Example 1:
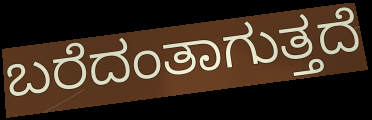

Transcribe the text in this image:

ಬರೆದಂತಾಗುತ್ತದೆ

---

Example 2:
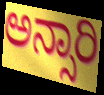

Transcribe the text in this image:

ಅನ್ಸಾರಿ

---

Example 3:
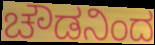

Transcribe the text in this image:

ಚೌಡನಿಂದ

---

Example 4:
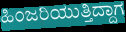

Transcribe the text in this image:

ಹಿಂಜರಿಯುತ್ತಿದ್ದಾಗ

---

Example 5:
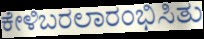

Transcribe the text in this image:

ಕೇಳಿಬರಲಾರಂಭಿಸಿತು